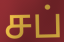
சப்